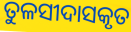
ତୁଳସୀଦାସକୃତ